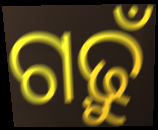
ଗଢ଼ୁଁ